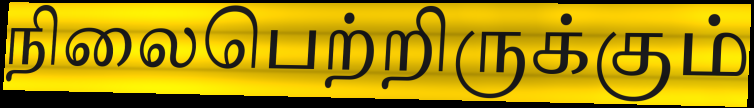
நிலைபெற்றிருக்கும்